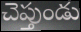
చెప్తుండు